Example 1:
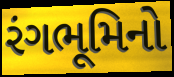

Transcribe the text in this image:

રંગભૂમિનો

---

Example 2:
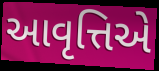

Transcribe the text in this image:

આવૃત્તિએ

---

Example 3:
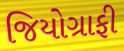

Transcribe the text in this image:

જિયોગ્રાફી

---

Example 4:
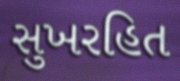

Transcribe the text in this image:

સુખરહિત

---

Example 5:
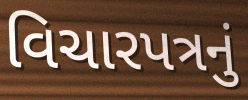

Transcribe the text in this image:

વિચારપત્રનું